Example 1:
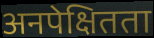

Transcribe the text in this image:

अनपेक्षितता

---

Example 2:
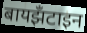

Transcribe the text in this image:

बायझँटाइन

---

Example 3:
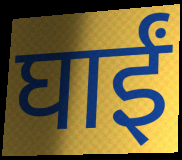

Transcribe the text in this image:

घाईं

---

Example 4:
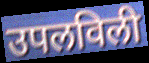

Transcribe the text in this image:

उपलविली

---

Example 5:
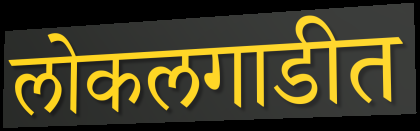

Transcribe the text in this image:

लोकलगाडीत